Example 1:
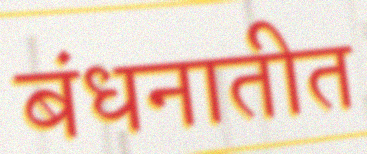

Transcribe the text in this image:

बंधनातीत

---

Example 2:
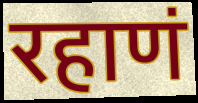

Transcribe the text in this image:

रहाणं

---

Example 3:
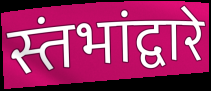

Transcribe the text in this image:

स्तंभांद्वारे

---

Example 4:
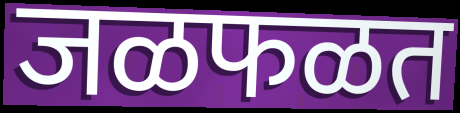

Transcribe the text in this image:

जळफळत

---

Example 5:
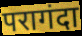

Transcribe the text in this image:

परागंदा